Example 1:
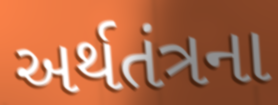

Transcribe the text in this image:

અર્થતંત્રના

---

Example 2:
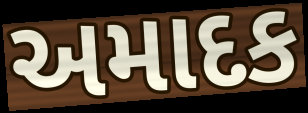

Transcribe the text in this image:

અમાદક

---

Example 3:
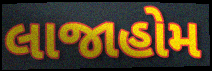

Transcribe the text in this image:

લાજાહોમ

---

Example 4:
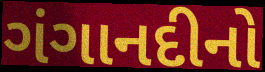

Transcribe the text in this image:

ગંગાનદીનો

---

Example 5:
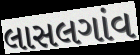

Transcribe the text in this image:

લાસલગાંવ